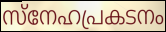
സ്നേഹപ്രകടനം